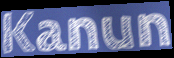
Kanun